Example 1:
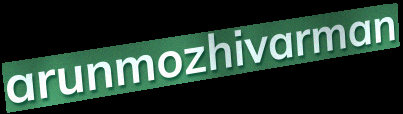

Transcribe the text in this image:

arunmozhivarman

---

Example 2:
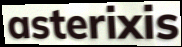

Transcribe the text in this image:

asterixis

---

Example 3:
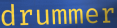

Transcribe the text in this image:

drummer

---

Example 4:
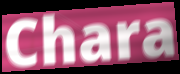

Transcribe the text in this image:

Chara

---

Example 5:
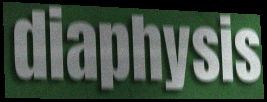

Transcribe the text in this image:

diaphysis